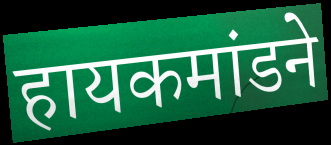
हायकमांडने